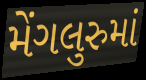
મેંગલુરુમાં